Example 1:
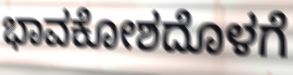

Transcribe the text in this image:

ಭಾವಕೋಶದೊಳಗೆ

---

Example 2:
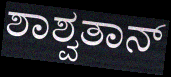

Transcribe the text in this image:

ಶಾಶ್ವತಾನ್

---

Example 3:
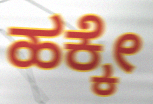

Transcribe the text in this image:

ಹಕ್ಕೇ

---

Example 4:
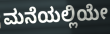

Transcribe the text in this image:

ಮನೆಯಲ್ಲಿಯೇ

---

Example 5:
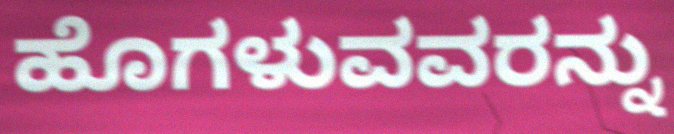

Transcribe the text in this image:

ಹೊಗಳುವವರನ್ನು